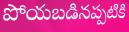
పోయబడినప్పటికి